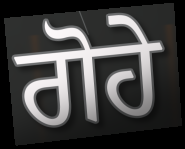
ਗੋਹੇ